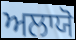
ਅਲਾਯੋ